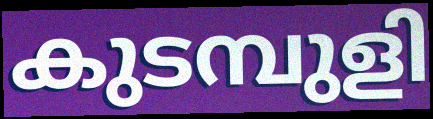
കുടമ്പുളി